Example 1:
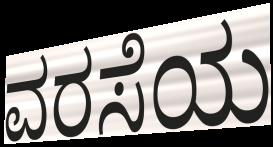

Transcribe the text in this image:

ವರಸೆಯ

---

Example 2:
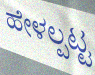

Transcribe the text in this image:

ಹೇಳಲ್ಪಟ್ಟ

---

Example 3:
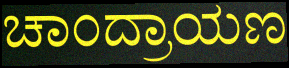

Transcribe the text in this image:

ಚಾಂದ್ರಾಯಣ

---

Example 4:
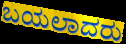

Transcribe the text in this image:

ಬಯಲಾದರು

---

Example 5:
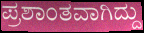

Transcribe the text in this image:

ಪ್ರಶಾಂತವಾಗಿದ್ದು